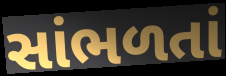
સાંભળતાં